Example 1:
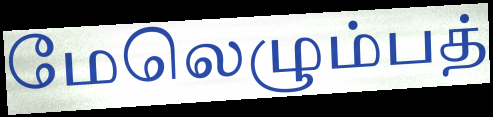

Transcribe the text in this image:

மேலெழும்பத்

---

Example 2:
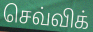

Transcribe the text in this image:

செவ்விக்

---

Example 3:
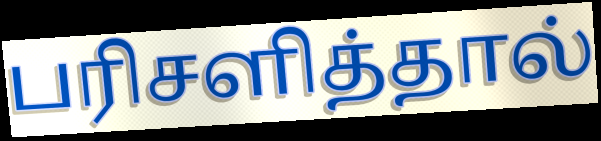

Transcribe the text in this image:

பரிசளித்தால்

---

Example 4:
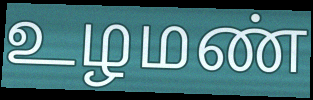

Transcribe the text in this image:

உழமண்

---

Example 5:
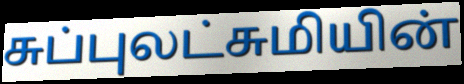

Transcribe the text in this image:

சுப்புலட்சுமியின்